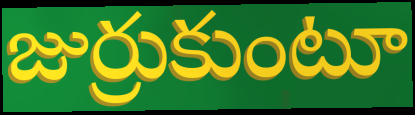
జుర్రుకుంటూ